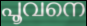
പൂവനെ